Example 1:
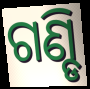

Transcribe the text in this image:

ଗଣ୍ଡି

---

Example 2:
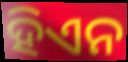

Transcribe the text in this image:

ହିଏନ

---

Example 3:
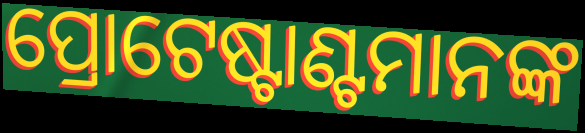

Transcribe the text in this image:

ପ୍ରୋଟେଷ୍ଟାଣ୍ଟମାନଙ୍କ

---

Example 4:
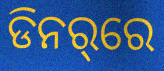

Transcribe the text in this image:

ଡିନର୍‌ରେ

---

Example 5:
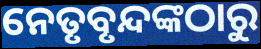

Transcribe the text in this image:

ନେତୃବୃନ୍ଦଙ୍କଠାରୁ